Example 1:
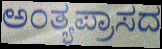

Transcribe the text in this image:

ಅಂತ್ಯಪ್ರಾಸದ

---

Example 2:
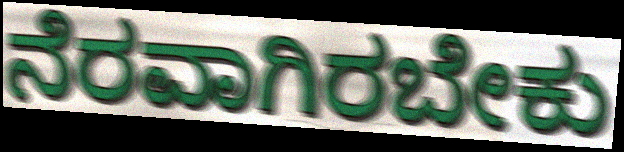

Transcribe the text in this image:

ನೆರವಾಗಿರಬೇಕು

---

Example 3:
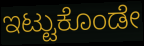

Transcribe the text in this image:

ಇಟ್ಟುಕೊಂಡೇ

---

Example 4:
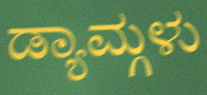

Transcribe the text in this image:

ಡ್ಯಾಮ್ಗಳು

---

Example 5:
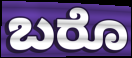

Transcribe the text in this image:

ಬರೊ